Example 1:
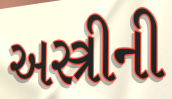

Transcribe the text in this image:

અસ્ત્રીની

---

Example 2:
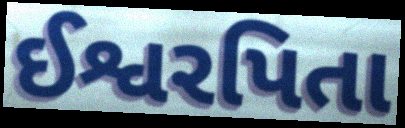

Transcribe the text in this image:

ઈશ્વરપિતા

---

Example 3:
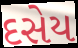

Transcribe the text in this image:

દસેય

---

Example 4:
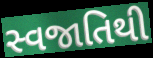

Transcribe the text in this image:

સ્વજાતિથી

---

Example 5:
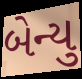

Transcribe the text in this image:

બેન્યુ